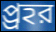
প্র্রহর